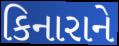
કિનારાને